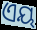
ଏୟ